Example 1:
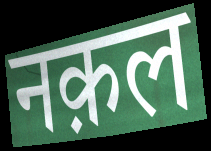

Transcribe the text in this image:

नक़ल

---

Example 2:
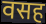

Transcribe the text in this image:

वसह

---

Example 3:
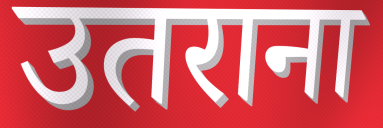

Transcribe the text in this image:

उतराना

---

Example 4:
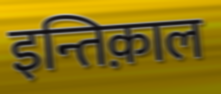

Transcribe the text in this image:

इन्तिक़ाल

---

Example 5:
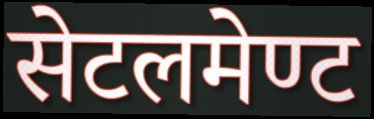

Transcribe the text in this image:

सेटलमेण्ट